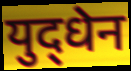
युद्धेन